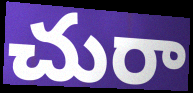
చురా